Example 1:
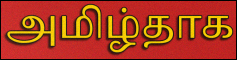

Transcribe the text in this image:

அமிழ்தாக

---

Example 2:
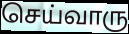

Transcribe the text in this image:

செய்வாரு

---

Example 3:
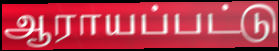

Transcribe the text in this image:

ஆராயப்பட்டு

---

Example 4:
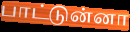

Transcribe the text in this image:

பாட்டுன்னா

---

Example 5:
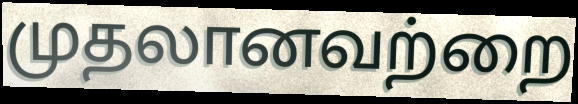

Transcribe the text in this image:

முதலானவற்றை